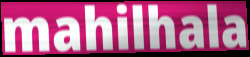
mahilhala